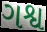
ગશ્વ